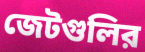
জেটগুলির